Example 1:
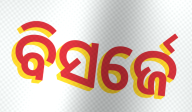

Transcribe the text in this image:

ବିସର୍ଜେ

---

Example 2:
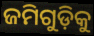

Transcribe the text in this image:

ଜମିଗୁଡ଼ିକୁ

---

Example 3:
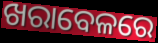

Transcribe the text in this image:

ଖରାବେଳରେ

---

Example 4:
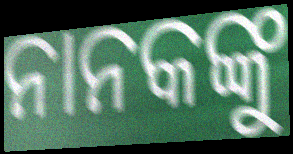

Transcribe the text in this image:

ନାନକଙ୍କୁ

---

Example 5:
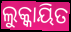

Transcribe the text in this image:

ଲୁକ୍କାୟିତ